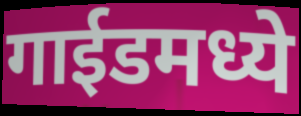
गाईडमध्ये